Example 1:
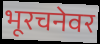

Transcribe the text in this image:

भूरचनेवर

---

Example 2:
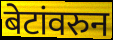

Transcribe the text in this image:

बेटांवरुन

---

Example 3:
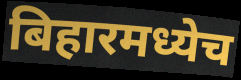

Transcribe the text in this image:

बिहारमध्येच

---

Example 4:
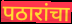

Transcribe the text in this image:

पठारांचा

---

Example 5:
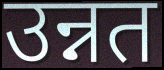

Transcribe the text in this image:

उन्नत